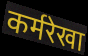
कर्मरेखा